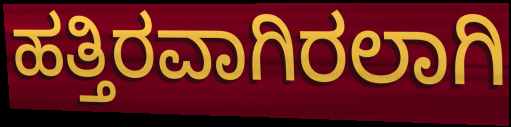
ಹತ್ತಿರವಾಗಿರಲಾಗಿ